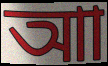
আা